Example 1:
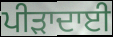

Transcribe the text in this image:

ਪੀੜਾਦਾਈ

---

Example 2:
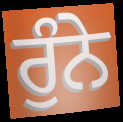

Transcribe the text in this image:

ਰੁੰਨੇ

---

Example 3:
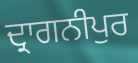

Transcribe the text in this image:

ਦ੍ਰਾਗਨੀਪੁਰ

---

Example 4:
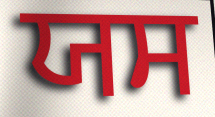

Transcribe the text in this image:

ਯਸ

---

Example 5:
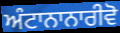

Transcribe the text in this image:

ਅੰਟਾਨਾਨਾਰੀਵੋ